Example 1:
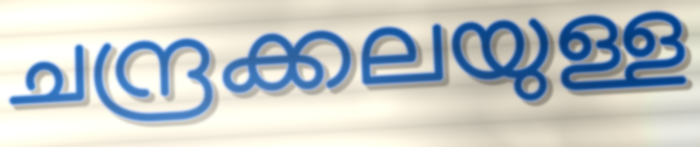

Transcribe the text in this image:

ചന്ദ്രക്കലയുള്ള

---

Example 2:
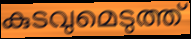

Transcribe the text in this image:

കുടവുമെടുത്ത്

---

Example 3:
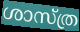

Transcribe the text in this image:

ശാസ്ത്ര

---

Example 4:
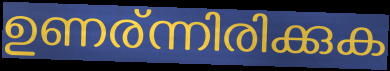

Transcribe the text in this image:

ഉണര്ന്നിരിക്കുക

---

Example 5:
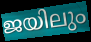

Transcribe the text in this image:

ജയിലും